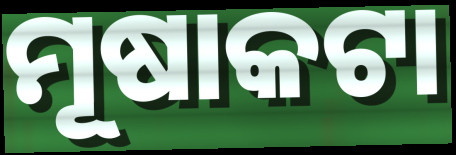
ମୂଷାକଟା